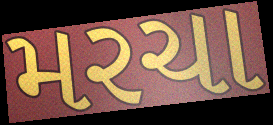
મરચા